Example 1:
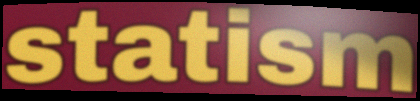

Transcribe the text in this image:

statism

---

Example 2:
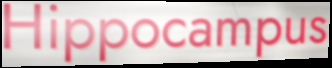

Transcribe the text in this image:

Hippocampus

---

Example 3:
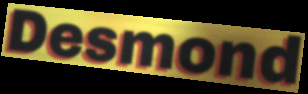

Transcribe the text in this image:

Desmond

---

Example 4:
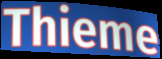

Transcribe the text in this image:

Thieme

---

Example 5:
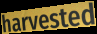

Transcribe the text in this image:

harvested